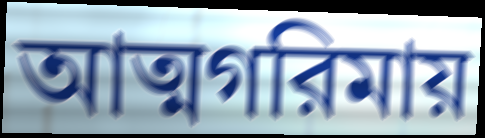
আত্মগরিমায়